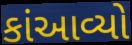
કાંઆવ્યો